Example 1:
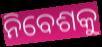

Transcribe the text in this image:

ନିବେଶକୁ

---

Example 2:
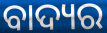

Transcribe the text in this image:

ବାଦ୍ୟର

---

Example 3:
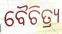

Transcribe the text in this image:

ବୈଚିତ୍ର୍ୟ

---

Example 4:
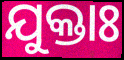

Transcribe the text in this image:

ଯୁକ୍ତାଃ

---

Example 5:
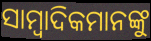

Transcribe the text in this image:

ସାମ୍ବାଦିକମାନଙ୍କୁ